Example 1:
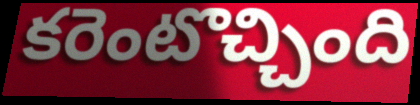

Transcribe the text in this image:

కరెంటొచ్చింది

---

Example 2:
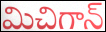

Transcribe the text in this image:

మిచిగాన్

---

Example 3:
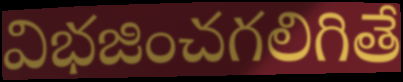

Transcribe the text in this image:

విభజించగలిగితే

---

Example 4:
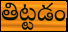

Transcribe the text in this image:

తిట్టడం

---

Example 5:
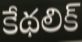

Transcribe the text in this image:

కేథలిక్